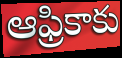
ఆఫ్రికాకు